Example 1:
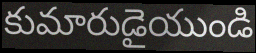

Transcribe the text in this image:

కుమారుడైయుండి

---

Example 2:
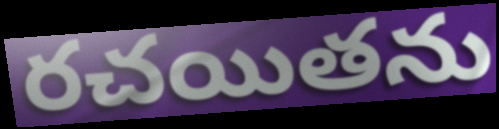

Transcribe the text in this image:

రచయితను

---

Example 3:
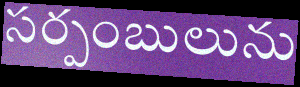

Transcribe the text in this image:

సర్పంబులును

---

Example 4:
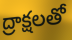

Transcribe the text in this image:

ద్రాక్షలతో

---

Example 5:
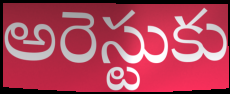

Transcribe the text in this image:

అరెస్టుకు